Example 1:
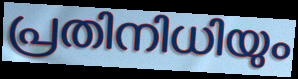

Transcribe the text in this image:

പ്രതിനിധിയും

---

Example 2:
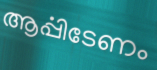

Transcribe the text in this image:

ആൎപ്പിടേണം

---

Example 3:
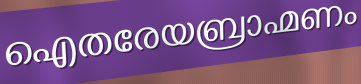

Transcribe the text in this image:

ഐതരേയബ്രാഹ്മണം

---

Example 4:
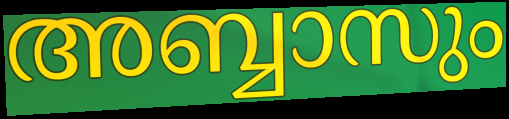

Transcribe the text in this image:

അബ്ബാസും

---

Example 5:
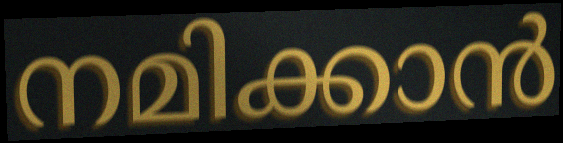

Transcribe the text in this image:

നമിക്കാൻ